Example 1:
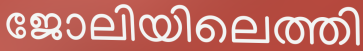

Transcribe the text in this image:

ജോലിയിലെത്തി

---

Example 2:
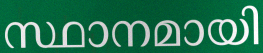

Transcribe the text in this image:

സ്ഥാനമായി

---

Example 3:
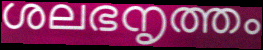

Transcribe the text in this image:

ശലഭനൃത്തം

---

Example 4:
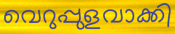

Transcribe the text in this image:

വെറുപ്പുളവാക്കി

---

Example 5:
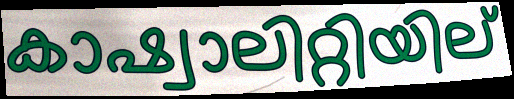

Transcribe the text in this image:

കാഷ്വാലിറ്റിയില്